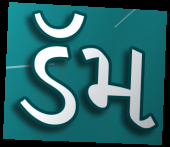
ડૅમ